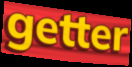
getter